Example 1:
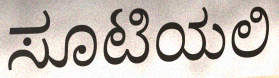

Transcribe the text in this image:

ಸೂಟಿಯಲಿ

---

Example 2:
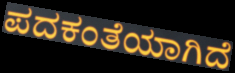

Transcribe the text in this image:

ಪದಕಂತೆಯಾಗಿದೆ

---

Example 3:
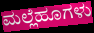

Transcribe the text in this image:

ಮಲ್ಲೆಹೂಗಳು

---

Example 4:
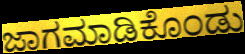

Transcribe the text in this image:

ಜಾಗಮಾಡಿಕೊಂಡು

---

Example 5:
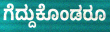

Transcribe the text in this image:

ಗೆದ್ದುಕೊಂಡರೂ